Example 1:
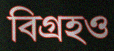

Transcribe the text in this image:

বিগ্রহও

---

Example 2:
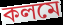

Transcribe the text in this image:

কলমে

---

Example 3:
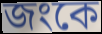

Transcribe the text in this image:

জংকে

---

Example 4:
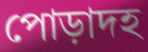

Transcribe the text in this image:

পোড়াদহ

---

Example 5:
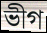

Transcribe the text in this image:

ভীগ